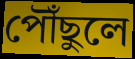
পৌঁছুলে